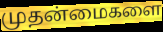
முதன்மைகளை